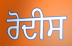
ਰੋਦੀਸ